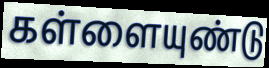
கள்ளையுண்டு